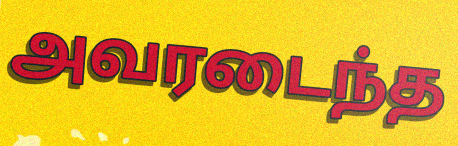
அவரடைந்த